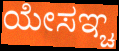
ಯೇಸಞ್ಚ